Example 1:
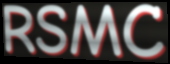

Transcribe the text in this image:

RSMC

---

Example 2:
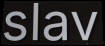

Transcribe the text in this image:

slav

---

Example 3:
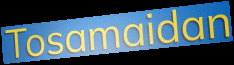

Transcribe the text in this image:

Tosamaidan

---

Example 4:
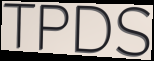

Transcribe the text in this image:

TPDS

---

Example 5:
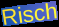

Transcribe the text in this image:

Risch